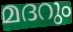
മദറും